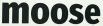
moose